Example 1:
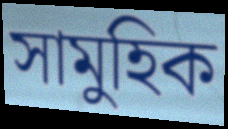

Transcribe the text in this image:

সামুহিক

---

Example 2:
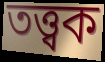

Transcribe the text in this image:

তত্ত্বক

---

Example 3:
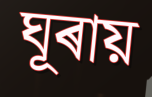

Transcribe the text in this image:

ঘূৰায়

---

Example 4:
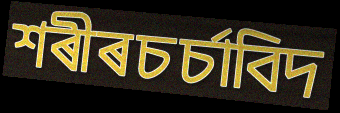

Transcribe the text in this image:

শৰীৰচৰ্চাবিদ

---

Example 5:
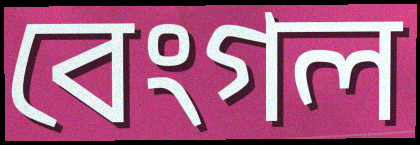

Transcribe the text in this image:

বেংগল